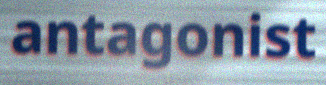
antagonist